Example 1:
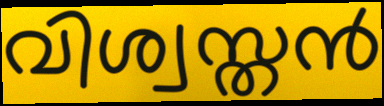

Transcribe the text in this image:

വിശ്വസ്തൻ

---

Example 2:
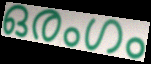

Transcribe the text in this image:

ഒരംഗം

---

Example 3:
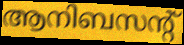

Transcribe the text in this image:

ആനിബസന്റ്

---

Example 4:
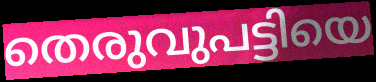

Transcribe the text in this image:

തെരുവുപട്ടിയെ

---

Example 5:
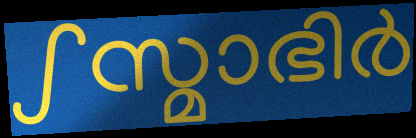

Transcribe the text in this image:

ഽസ്മാഭിർ